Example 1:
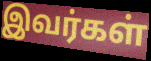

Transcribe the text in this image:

இவர்கள்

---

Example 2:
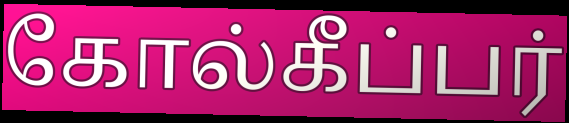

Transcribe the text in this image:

கோல்கீப்பர்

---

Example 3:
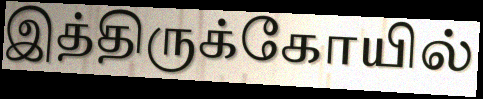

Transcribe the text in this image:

இத்திருக்கோயில்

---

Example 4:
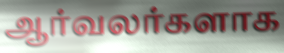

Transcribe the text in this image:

ஆர்வலர்களாக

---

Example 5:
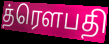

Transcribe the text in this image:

த்ரௌபதி